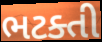
ભટક્તી